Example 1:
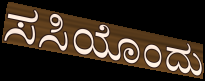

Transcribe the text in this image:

ಸಸಿಯೊಂದು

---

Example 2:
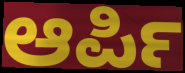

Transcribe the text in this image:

ಆರ್ಪಿ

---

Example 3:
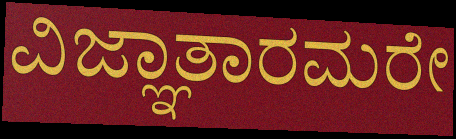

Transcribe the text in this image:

ವಿಜ್ಞಾತಾರಮರೇ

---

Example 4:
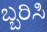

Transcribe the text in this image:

ಬ್ಬರಿಸಿ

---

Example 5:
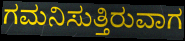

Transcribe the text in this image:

ಗಮನಿಸುತ್ತಿರುವಾಗ